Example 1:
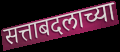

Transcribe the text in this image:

सत्ताबदलाच्या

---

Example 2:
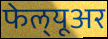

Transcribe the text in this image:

फेल्यूअर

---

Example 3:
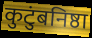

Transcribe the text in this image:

कुटुंबनिष्ठा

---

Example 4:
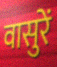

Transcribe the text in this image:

वासुरें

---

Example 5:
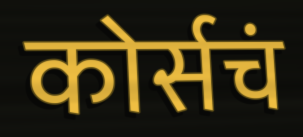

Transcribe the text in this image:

कोर्सचं